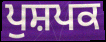
ਪੁਸ਼ਪਕ